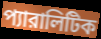
প্যারালিটিক